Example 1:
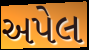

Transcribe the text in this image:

અપેલ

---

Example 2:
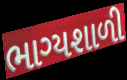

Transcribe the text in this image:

ભાગ્યશાળી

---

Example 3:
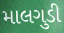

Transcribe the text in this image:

માલગુડી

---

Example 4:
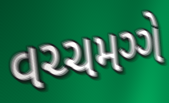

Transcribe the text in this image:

વચ્ચમગ્ગે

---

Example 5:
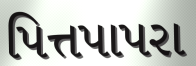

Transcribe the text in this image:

પિત્તપાપરા